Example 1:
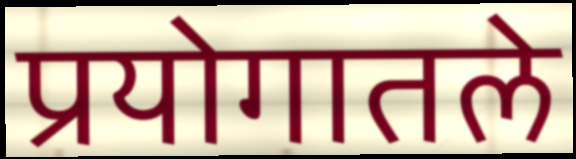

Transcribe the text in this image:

प्रयोगातले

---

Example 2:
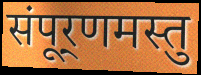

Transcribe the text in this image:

संपूर्णमस्तु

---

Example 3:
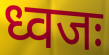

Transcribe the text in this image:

ध्वजः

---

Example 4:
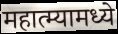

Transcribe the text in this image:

महात्म्यामध्ये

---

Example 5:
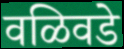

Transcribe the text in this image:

वळिवडे